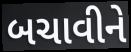
બચાવીને